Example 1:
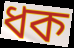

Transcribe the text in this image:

ধক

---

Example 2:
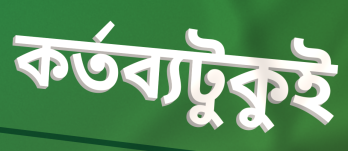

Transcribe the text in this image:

কর্তব্যটুকুই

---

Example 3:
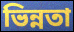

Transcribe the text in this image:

ভিন্নতা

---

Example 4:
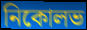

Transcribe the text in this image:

নিকোলভ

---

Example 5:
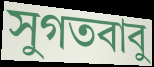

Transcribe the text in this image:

সুগতবাবু